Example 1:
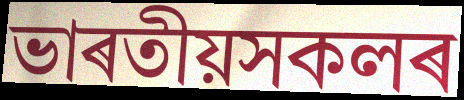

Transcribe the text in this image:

ভাৰতীয়সকলৰ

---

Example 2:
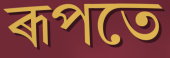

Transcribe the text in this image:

ৰূপতে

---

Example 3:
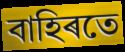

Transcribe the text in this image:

বাহিৰতে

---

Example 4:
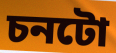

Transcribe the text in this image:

চনটো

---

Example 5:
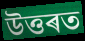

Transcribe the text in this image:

উত্তৰত